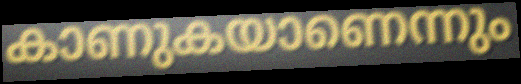
കാണുകയാണെന്നും